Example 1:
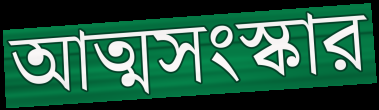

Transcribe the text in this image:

আত্মসংস্কার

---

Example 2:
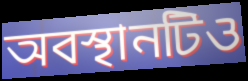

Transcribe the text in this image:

অবস্থানটিও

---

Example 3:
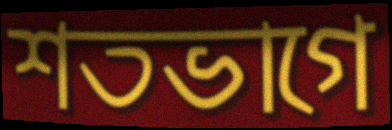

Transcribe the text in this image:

শতভাগে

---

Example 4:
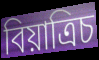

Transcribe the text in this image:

বিয়াত্রিচ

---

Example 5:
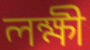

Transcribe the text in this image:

লক্ষী